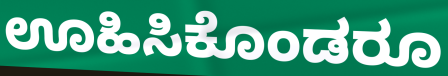
ಊಹಿಸಿಕೊಂಡರೂ